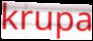
krupa